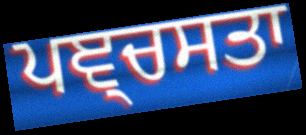
ਪਞ੍ਚਸਤਾ